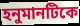
হনুমানটিকে